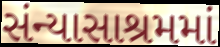
સંન્યાસાશ્રમમાં